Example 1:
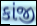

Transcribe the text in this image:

કાંજી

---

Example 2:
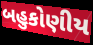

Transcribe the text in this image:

બહુકોણીય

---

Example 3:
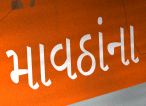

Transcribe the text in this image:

માવઠાંના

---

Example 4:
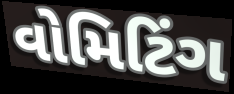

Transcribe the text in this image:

વોમિટિંગ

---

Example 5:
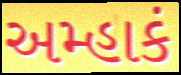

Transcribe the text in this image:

અમ્હાકં